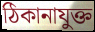
ঠিকানাযুক্ত